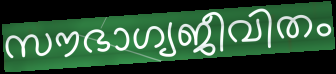
സൗഭാഗ്യജീവിതം